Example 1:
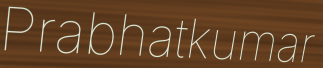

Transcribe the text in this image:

Prabhatkumar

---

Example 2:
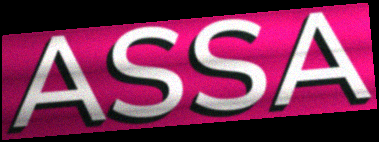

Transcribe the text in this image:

ASSA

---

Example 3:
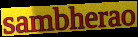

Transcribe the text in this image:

sambherao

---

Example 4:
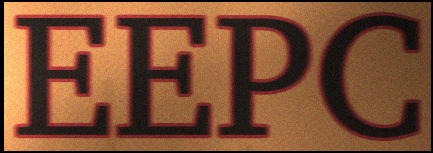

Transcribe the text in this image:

EEPC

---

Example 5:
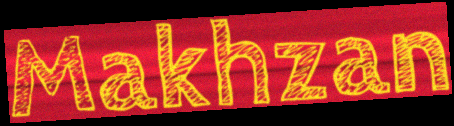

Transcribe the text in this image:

Makhzan